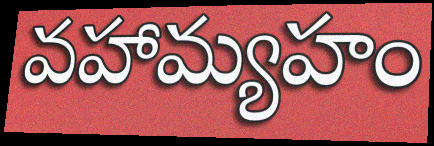
వహామ్యహం